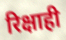
रिक्षाही